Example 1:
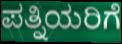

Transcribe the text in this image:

ಪತ್ನಿಯರಿಗೆ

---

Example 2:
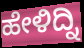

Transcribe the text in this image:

ಹೇಳಿದ್ನಿ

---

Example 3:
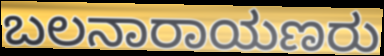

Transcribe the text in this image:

ಬಲನಾರಾಯಣರು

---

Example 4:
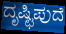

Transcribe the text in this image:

ದೃಷ್ಟಿಪುದೆ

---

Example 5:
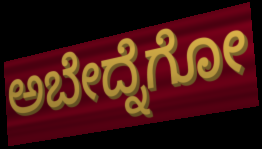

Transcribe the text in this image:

ಅಬೇದ್ನೆಗೋ